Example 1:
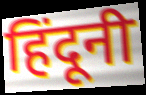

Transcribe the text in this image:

हिंदूनी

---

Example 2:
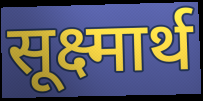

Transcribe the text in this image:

सूक्ष्मार्थ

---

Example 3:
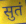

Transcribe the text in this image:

सुतं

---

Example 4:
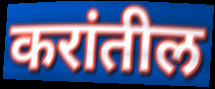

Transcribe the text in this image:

करांतील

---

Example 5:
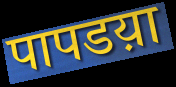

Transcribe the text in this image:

पापडय़ा